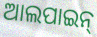
ଆଲପାଇନ୍